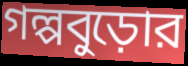
গল্পবুড়োর